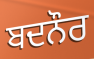
ਬਦਨੌਰ